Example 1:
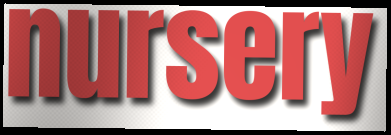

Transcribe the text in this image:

nursery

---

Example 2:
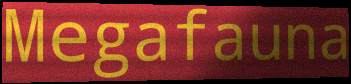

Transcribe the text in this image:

Megafauna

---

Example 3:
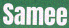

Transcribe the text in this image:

Samee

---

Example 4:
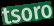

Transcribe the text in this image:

tsoro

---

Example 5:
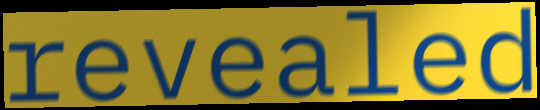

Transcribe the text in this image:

revealed